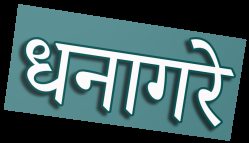
धनागरे